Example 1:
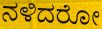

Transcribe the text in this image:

ನಳಿದರೋ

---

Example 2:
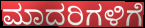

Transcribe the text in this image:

ಮಾದರಿಗಳಿಗೆ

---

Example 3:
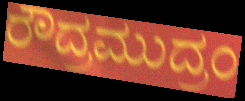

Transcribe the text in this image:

ರೌದ್ರಮುದ್ರಂ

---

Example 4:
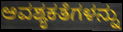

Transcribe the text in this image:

ಆವಶ್ಯಕತೆಗಳನ್ನು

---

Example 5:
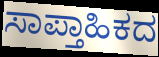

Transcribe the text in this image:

ಸಾಪ್ತಾಹಿಕದ